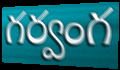
గర్వంగ